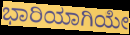
ಭಾರಿಯಾಗಿಯೇ